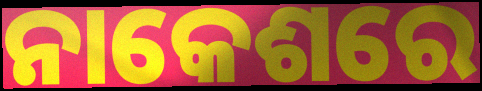
ନାକେଶରେ